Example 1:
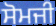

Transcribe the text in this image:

ਸੋਮਜੀ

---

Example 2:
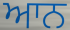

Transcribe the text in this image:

ਆਨ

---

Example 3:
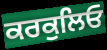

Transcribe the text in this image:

ਕਰਕੁਲਿਓ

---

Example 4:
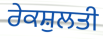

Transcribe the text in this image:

ਰੇਕਸ਼ੁਲਤੀ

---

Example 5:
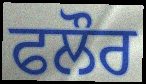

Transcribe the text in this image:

ਫਲੌਰ